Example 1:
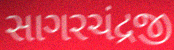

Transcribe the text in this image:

સાગરચંદ્રજી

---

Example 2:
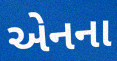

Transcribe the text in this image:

એનના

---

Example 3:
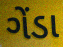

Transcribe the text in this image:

ગેંડા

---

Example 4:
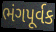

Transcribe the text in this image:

ભંગપૂર્વક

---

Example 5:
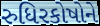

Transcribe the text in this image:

રુધિરકોષોને